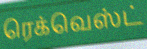
ரெக்வெஸ்ட்